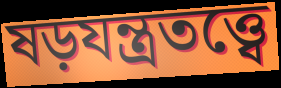
ষড়যন্ত্রতত্ত্বে